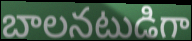
బాలనటుడిగా